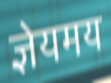
ज्ञेयमय